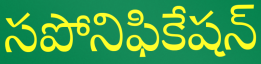
సపోనిఫికేషన్